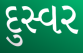
દુસ્વર